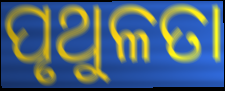
ପୃଥୁଳତା